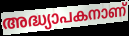
അദ്ധ്യാപകനാണ്